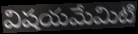
విషయమేమిటి